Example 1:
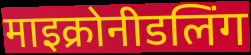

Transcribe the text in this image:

माइक्रोनीडलिंग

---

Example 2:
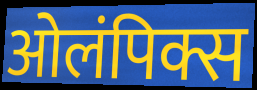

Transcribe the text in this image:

ओलंपिक्स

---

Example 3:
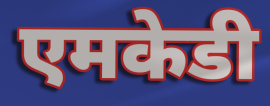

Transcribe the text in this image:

एमकेडी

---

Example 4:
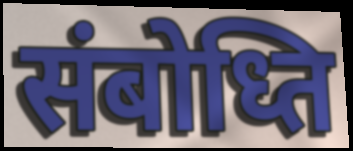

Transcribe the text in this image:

संबोध्ति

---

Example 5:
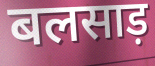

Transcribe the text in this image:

बलसाड़